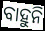
ବାହୁନି